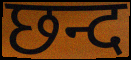
छन्‍द